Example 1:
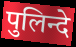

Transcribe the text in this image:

पुलिन्दे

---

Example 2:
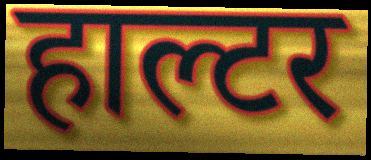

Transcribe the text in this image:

हाल्टर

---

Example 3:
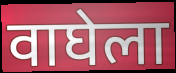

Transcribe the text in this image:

वाघेला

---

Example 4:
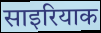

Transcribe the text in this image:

साइरियाक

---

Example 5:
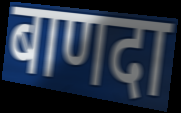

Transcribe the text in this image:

बाणदा